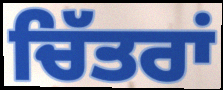
ਚਿੱਤਰਾਂ